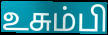
உசும்பி